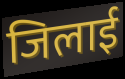
जिलाई